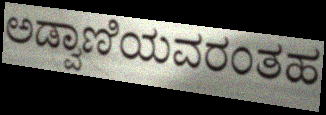
ಅಡ್ವಾಣಿಯವರಂತಹ